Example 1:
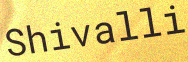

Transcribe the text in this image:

Shivalli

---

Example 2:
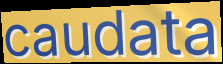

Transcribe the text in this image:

caudata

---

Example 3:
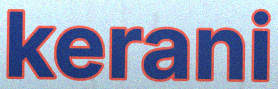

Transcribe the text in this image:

kerani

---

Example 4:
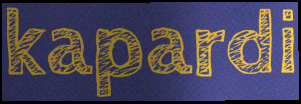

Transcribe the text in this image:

kapardi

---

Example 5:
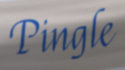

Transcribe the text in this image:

Pingle